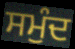
ਸਮੁੰਦ